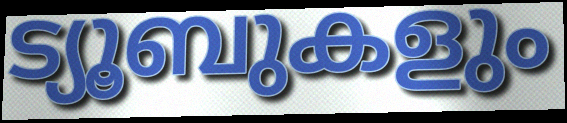
ട്യൂബുകളും